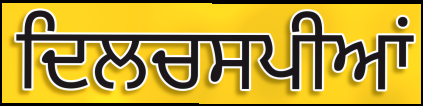
ਦਿਲਚਸਪੀਆਂ